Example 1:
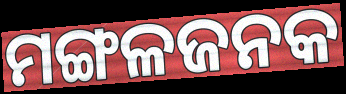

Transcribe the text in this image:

ମଙ୍ଗଳଜନକ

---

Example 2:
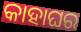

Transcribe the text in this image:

କାହାଘର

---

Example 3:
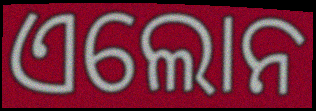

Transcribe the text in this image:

ଏଲୋନ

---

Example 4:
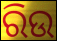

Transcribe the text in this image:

ରିଉ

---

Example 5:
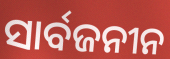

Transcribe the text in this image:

ସାର୍ବଜନୀନ